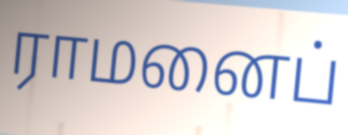
ராமனைப்